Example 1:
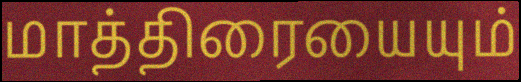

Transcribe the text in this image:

மாத்திரையையும்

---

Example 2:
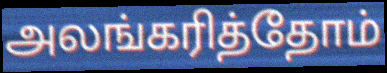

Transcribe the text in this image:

அலங்கரித்தோம்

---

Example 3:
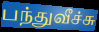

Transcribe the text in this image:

பந்துவீச்சு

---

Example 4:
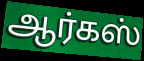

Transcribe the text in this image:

ஆர்கஸ்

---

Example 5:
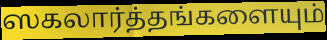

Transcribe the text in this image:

ஸகலார்த்தங்களையும்